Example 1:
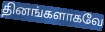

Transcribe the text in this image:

தினங்களாகவே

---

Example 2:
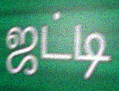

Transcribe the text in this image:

ஜட்டி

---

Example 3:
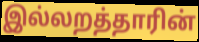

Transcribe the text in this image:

இல்லறத்தாரின்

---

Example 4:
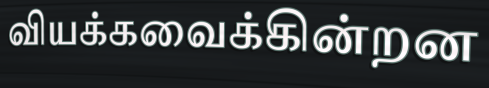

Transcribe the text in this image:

வியக்கவைக்கின்றன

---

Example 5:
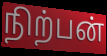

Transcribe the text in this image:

நிற்பன்